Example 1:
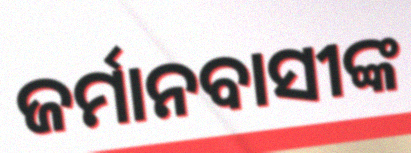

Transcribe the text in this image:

ଜର୍ମାନବାସୀଙ୍କ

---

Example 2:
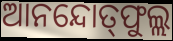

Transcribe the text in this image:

ଆନନ୍ଦୋତ୍‍ଫୁଲ୍ଲ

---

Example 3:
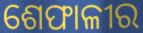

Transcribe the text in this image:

ଶେଫାଳୀର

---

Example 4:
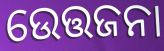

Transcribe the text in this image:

ଉେତ୍ତଜନା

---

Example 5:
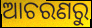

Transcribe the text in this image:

ଆଚରଣରୁ